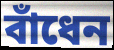
বাঁধেন